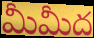
మీమీద